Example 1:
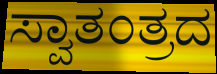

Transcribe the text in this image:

ಸ್ವಾತಂತ್ರದ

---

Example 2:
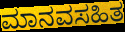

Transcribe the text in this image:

ಮಾನವಸಹಿತ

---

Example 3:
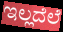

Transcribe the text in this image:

ಇಲ್ಲದೆಲೆ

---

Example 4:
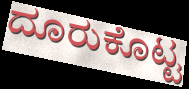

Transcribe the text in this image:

ದೂರುಕೊಟ್ಟ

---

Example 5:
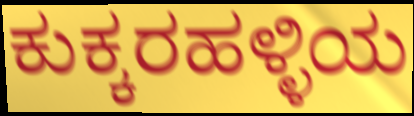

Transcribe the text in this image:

ಕುಕ್ಕರಹಳ್ಳಿಯ